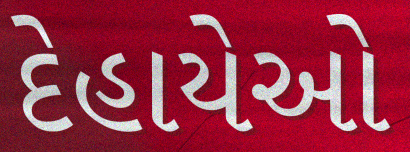
દેહાયેઓ